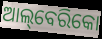
ଆଲ୍‌ବେରିକୋ